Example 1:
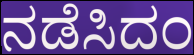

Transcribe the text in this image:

ನಡೆಸಿದಂ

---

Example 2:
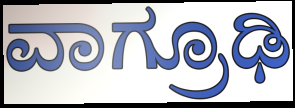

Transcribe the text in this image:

ವಾಗ್ರೂಢಿ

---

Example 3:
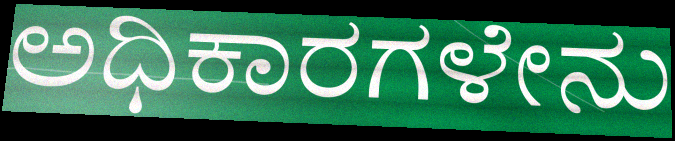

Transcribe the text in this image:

ಅಧಿಕಾರಗಳೇನು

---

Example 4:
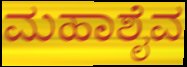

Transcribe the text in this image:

ಮಹಾಶೈವ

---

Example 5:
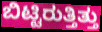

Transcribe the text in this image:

ಬಿಟ್ಟಿರುತ್ತಿತ್ತು